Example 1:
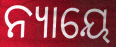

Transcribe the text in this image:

ନ୍ୟାୟେ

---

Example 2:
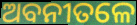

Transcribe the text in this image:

ଅବନୀତଳେ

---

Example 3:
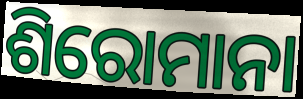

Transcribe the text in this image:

ଶିରୋମାନା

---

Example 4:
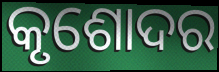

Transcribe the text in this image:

କୃଶୋଦର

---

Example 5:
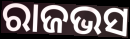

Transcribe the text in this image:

ରାଜଭସ